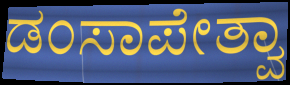
ಡಂಸಾಪೇತ್ವಾ